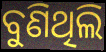
ବୁଣିଥିଲି